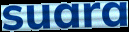
suara